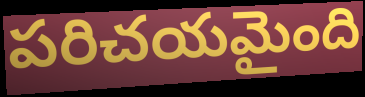
పరిచయమైంది